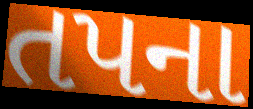
તપના